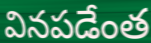
వినపడేంత